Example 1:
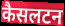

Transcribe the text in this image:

कैसलटन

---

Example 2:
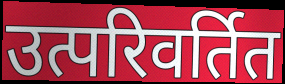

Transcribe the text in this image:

उत्परिवर्तित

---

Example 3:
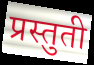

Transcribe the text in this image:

प्रस्तुती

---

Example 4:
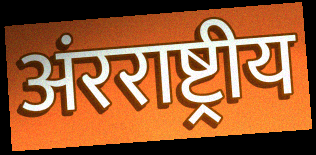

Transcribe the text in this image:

अंरराष्ट्रीय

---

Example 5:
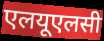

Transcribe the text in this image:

एलयूएलसी